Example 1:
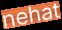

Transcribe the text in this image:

nehat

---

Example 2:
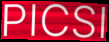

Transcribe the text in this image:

PICSI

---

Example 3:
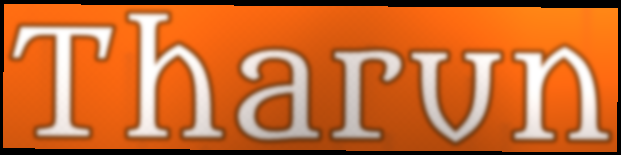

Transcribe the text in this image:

Tharun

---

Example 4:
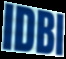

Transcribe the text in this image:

IDBI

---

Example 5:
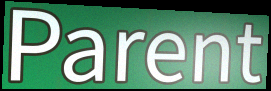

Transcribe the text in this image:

Parent